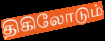
திகிலோடும்